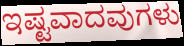
ಇಷ್ಟವಾದವುಗಳು